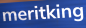
meritking